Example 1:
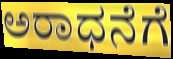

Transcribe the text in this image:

ಅರಾಧನೆಗೆ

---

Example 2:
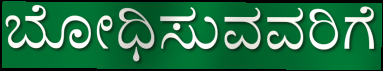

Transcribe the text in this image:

ಬೋಧಿಸುವವರಿಗೆ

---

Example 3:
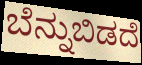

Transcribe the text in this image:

ಬೆನ್ನುಬಿಡದೆ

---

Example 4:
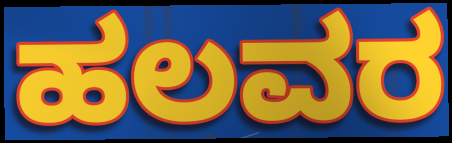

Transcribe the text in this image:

ಹಲವರ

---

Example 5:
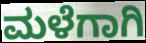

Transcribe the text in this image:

ಮಳೆಗಾಗಿ